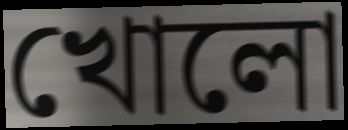
খোলো